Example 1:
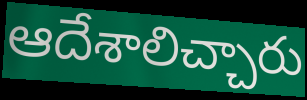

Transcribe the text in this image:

ఆదేశాలిచ్చారు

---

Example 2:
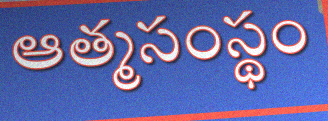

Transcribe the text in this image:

ఆత్మసంస్థం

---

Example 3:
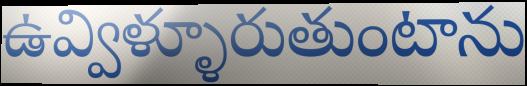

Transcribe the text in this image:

ఉవ్విళ్ళూరుతుంటాను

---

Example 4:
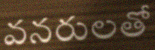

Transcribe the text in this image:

వనరులతో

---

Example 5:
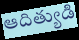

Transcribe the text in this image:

ఆదిత్యుడి